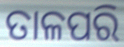
ତାଳପରି